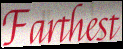
Farthest